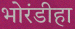
भोरंडीहा